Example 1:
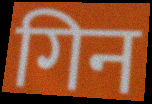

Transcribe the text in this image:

गिन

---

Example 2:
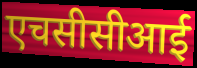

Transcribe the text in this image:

एचसीसीआई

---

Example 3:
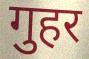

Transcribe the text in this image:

गुहर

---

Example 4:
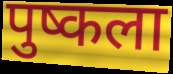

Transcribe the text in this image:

पुष्कला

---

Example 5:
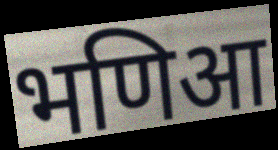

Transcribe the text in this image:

भणिआ